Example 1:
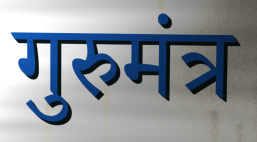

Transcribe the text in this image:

गुरुमंत्र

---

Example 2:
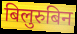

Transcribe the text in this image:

बिलुरुबिन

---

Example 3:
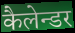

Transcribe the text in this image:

कैलेन्डर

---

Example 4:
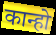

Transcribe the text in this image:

कान्हो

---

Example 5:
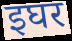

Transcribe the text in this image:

इघर